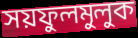
সয়ফুলমুলুক